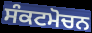
ਸੰਕਟਮੋਚਨ